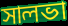
সালভা